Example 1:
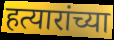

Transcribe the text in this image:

हत्यारांच्या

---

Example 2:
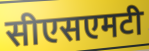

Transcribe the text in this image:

सीएसएमटी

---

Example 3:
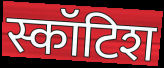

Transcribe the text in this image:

स्कॉटिश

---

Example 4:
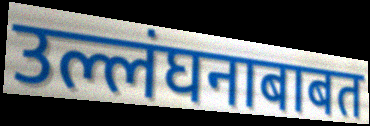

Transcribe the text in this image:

उल्लंघनाबाबत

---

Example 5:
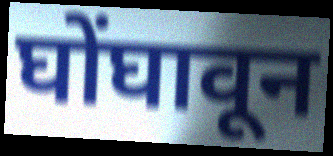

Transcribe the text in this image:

घोंघावून